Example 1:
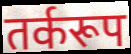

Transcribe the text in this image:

तर्करूप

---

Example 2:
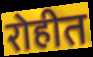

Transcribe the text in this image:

रोहीत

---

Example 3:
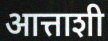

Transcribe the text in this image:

आत्ताशी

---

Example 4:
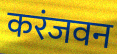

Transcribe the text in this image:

करंजवन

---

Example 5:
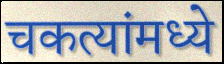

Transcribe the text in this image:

चकत्यांमध्ये